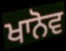
ਖਾਨੋਵ